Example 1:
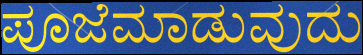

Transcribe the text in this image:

ಪೂಜೆಮಾಡುವುದು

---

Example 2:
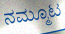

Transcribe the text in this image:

ನಮ್ಮೂಟ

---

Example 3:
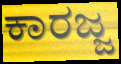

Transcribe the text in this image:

ಕಾರಜ್ಜ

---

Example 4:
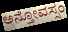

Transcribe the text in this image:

ಅನ್ತೋವಸ್ಸಂ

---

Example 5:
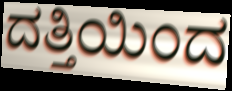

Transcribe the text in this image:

ದತ್ತಿಯಿಂದ